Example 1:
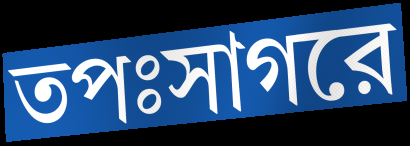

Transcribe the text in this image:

তপঃসাগরে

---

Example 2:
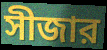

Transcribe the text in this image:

সীজার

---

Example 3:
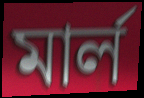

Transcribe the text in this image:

মার্ল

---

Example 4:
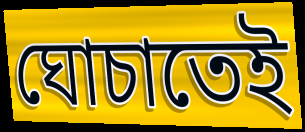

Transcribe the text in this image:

ঘোচাতেই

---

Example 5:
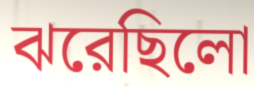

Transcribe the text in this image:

ঝরেছিলো